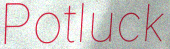
Potluck